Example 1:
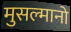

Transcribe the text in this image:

मुसल्मानो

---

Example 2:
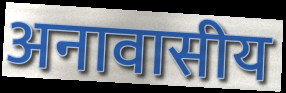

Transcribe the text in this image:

अनावासीय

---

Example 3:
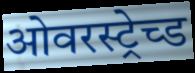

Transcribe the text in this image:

ओवरस्ट्रेच्ड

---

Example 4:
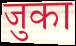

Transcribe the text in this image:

जुका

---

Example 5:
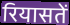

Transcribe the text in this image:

रियासतें